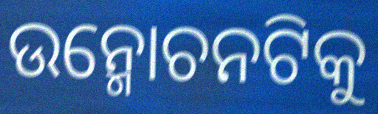
ଉନ୍ମୋଚନଟିକୁ